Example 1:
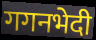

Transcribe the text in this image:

गगनभेदी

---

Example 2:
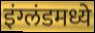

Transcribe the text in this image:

इंग्लंडमध्ये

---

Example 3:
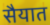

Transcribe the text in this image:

सैयात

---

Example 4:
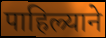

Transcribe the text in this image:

पाहिल्याने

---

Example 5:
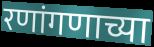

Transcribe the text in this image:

रणांगणाच्या